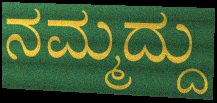
ನಮ್ಮದ್ದು